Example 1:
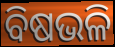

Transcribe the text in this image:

ବିଷଭଳି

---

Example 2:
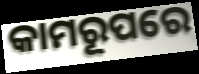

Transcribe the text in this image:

କାମରୂପରେ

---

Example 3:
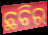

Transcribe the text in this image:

ଛବିର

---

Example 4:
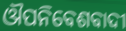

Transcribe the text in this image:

ଔପନିବେଶବାଦୀ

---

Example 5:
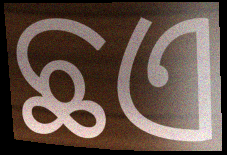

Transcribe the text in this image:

ଛଏ